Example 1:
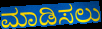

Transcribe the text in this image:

ಮಾಡಿಸಲು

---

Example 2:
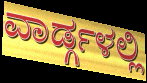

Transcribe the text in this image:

ವಾರ್ಡ್ಗಳಲ್ಲಿ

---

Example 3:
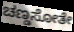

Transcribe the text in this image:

ಚಣ್ಡಸೋತೇ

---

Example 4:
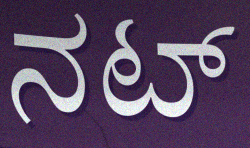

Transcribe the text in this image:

ನಟ್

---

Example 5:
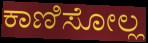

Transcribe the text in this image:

ಕಾಣಿಸೋಲ್ಲ